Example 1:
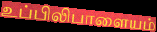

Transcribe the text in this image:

உப்பிலிபாளையம்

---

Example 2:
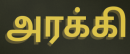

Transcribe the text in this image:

அரக்கி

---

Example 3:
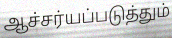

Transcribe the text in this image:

ஆச்சர்யப்படுத்தும்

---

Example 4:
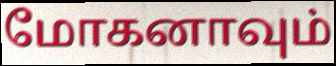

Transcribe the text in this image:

மோகனாவும்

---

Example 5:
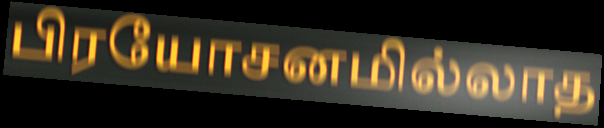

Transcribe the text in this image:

பிரயோசனமில்லாத